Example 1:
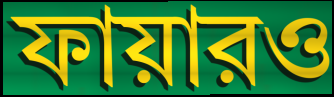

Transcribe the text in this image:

ফায়ারও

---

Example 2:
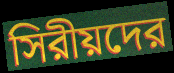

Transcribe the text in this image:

সিরীয়দের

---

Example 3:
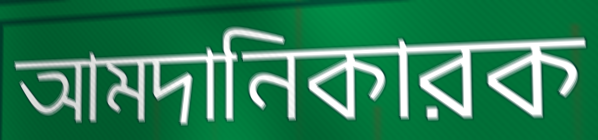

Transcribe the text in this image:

আমদানিকারক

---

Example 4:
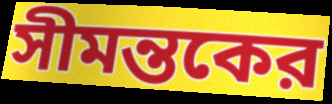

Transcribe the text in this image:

সীমন্তকের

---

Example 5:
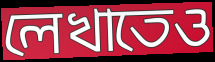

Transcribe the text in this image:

লেখাতেও